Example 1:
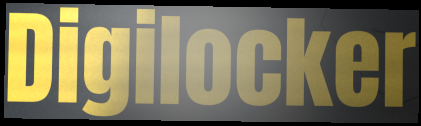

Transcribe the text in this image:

Digilocker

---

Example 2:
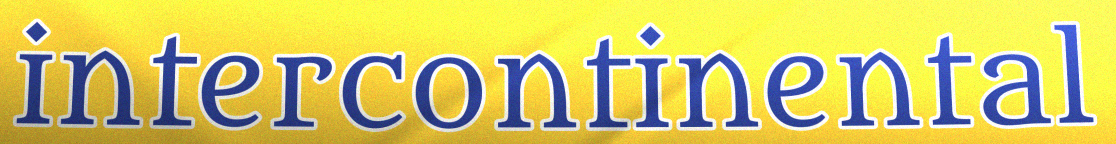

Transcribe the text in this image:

intercontinental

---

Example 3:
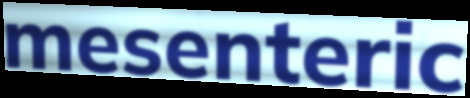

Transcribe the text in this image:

mesenteric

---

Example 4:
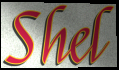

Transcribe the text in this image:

Shel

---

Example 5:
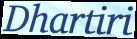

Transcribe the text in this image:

Dhartiri